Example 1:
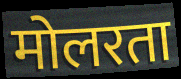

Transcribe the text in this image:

मोलरता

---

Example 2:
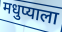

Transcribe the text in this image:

मधुप्याला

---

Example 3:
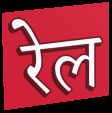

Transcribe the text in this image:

रेल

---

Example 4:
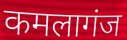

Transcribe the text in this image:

कमलागंज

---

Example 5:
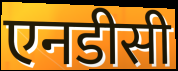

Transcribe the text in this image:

एनडीसी